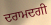
ਦਰਾਮਦਗੀ